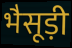
भैसूड़ी